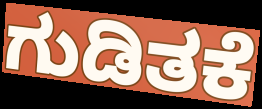
ಗುಡಿತಕೆ